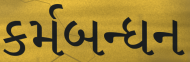
કર્મબન્ધન